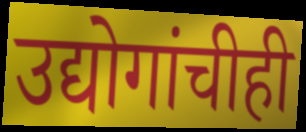
उद्योगांचीही